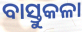
ବାସ୍ତୁକଳା